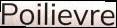
Poilievre